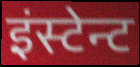
इंस्टेन्ट